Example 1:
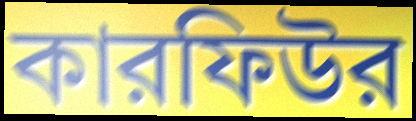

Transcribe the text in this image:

কারফিউর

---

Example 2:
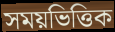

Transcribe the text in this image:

সময়ভিত্তিক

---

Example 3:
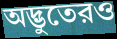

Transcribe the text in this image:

অদ্ভুতেরও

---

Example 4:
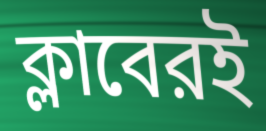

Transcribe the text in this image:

ক্লাবেরই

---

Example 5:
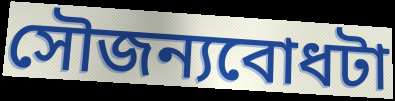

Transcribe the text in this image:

সৌজন্যবোধটা